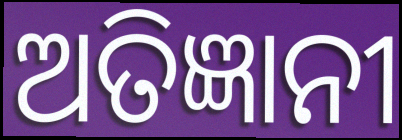
ଅତିଜ୍ଞାନୀ